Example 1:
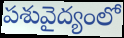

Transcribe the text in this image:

పశువైద్యంలో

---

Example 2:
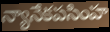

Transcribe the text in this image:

న్యానేకపసింహ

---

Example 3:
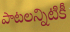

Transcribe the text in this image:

పాటలన్నిటికీ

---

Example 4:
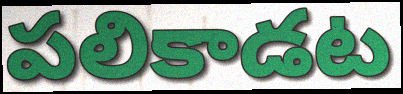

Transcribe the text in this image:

పలికాడట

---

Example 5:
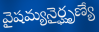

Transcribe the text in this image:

వైషమ్యనైర్ఘృణ్యే